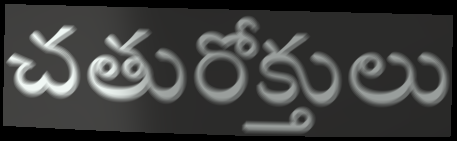
చతురోక్తులు